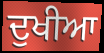
ਦੁਖੀਆ